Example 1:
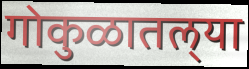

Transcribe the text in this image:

गोकुळातल्या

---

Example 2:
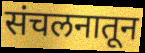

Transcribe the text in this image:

संचलनातून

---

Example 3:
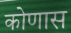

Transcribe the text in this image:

कोणास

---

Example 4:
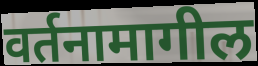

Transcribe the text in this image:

वर्तनामागील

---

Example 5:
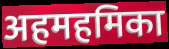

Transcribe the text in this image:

अहमहमिका